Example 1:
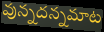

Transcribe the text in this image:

వున్నదన్నమాట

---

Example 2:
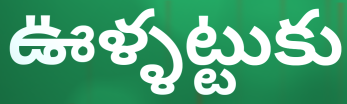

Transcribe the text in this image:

ఊళ్ళట్టుకు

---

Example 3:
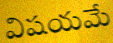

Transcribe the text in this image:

విషయమే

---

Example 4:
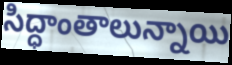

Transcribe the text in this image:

సిద్ధాంతాలున్నాయి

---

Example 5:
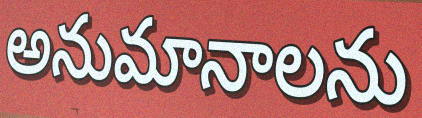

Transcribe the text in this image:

అనుమానాలను